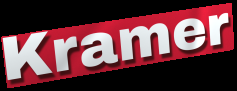
Kramer